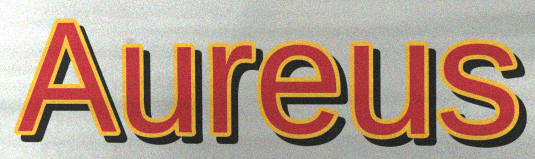
Aureus